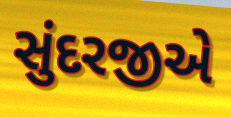
સુંદરજીએ